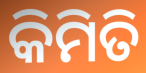
କିମିତି